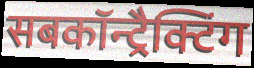
सबकॉन्ट्रैक्टिंग